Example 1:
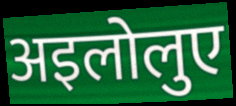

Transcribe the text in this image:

अइलोलुए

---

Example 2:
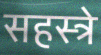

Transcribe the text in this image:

सहस्त्रे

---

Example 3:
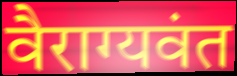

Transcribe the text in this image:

वैराग्यवंत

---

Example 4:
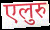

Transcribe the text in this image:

एलुरु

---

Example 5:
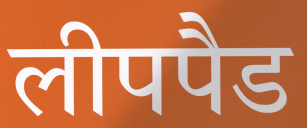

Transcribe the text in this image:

लीपपैड